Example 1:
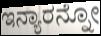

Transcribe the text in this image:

ಇನ್ಯಾರನ್ನೋ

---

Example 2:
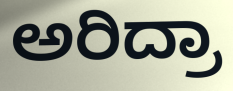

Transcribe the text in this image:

ಅರಿದ್ರಾ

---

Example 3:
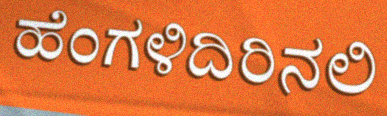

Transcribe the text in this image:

ಹೆಂಗಳಿದಿರಿನಲಿ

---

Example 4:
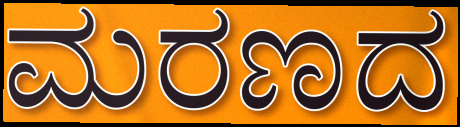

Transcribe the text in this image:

ಮರಣದ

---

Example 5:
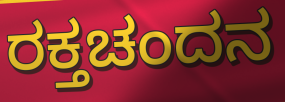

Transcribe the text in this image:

ರಕ್ತಚಂದನ